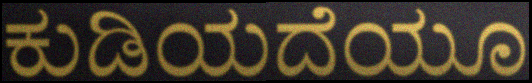
ಕುಡಿಯದೆಯೂ